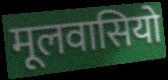
मूलवासियो